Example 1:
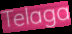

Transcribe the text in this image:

Telaga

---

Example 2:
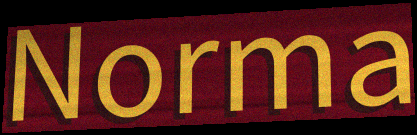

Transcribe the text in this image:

Norma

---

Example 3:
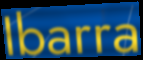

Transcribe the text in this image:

Ibarra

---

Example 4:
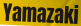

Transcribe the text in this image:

Yamazaki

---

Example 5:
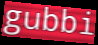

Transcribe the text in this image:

gubbi